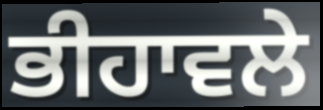
ਭੀਹਾਵਲੇ